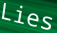
Lies